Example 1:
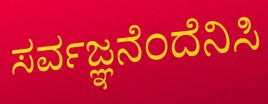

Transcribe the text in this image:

ಸರ್ವಜ್ಞನೆಂದೆನಿಸಿ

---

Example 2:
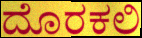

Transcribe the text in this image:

ದೊರಕಲಿ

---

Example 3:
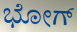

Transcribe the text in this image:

ಭೋಗ್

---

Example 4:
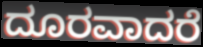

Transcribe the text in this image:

ದೂರವಾದರೆ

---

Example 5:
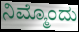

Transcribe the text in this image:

ನಿಮ್ಮೊಂದು